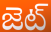
జెట్